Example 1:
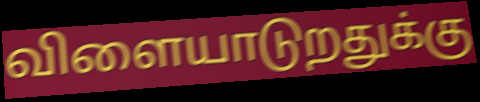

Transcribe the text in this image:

விளையாடுறதுக்கு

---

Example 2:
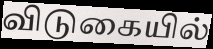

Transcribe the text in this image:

விடுகையில்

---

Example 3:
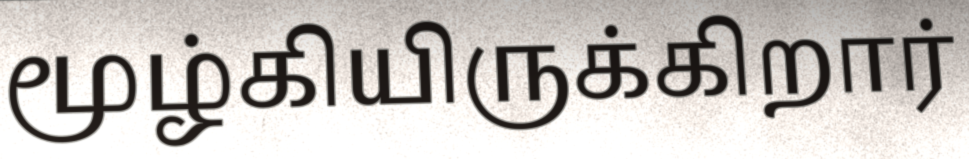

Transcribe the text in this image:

மூழ்கியிருக்கிறார்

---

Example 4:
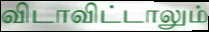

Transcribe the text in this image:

விடாவிட்டாலும்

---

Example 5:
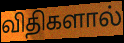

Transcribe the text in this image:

விதிகளால்